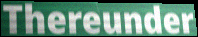
Thereunder